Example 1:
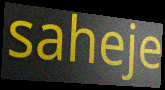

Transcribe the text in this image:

saheje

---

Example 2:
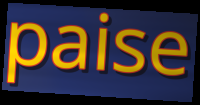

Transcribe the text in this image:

paise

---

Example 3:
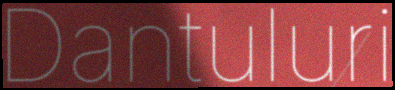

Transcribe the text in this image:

Dantuluri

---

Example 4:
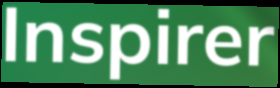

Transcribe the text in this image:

Inspirer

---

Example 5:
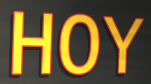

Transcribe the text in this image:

HOY